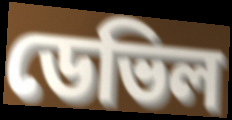
ডেভিল